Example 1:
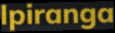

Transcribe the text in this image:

Ipiranga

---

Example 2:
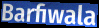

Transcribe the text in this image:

Barfiwala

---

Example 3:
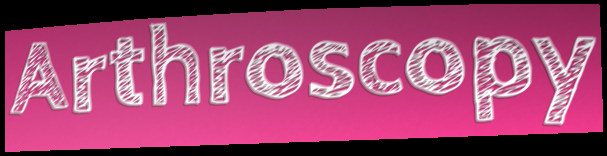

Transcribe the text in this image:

Arthroscopy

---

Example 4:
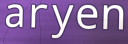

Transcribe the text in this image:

aryen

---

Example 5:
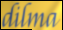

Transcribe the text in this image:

dilma